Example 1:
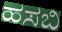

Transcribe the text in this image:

ಹಸಬಿ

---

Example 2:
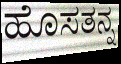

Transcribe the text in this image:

ಹೊಸತನ್ನ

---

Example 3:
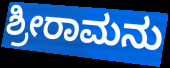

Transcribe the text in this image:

ಶ್ರೀರಾಮನು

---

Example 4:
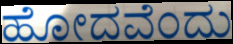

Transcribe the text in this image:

ಹೋದವೆಂದು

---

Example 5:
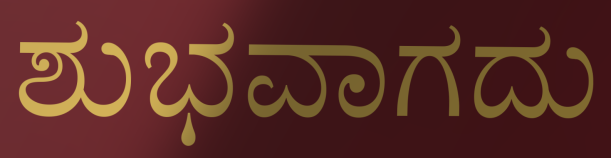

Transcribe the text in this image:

ಶುಭವಾಗದು